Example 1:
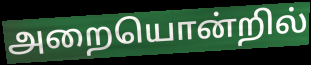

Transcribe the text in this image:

அறையொன்றில்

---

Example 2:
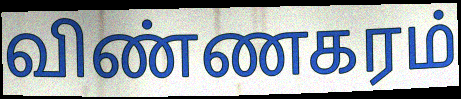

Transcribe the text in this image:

விண்ணகரம்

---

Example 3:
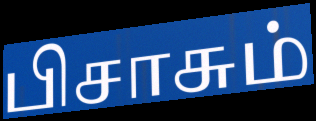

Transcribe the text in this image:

பிசாசும்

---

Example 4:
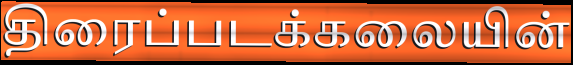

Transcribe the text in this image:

திரைப்படக்கலையின்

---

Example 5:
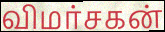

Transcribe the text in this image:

விமர்சகன்